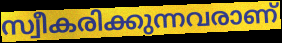
സ്വീകരിക്കുന്നവരാണ്